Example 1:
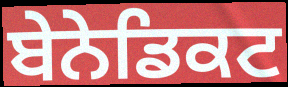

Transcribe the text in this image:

ਬੇਨੇਡਿਕਟ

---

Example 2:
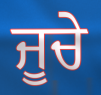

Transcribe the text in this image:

ਜੂਚੇ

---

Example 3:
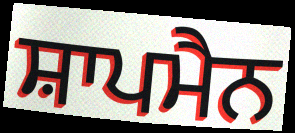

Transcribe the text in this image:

ਸ਼ਾਪਮੈਨ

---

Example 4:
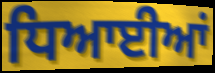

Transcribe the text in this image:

ਧਿਆਈਆਂ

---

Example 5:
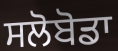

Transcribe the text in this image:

ਸਲੋਬੋਡਾ